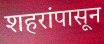
शहरांपासून